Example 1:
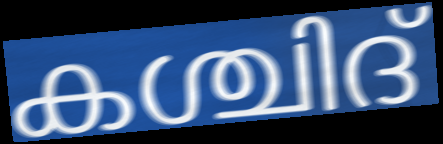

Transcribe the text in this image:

കശ്ചിദ്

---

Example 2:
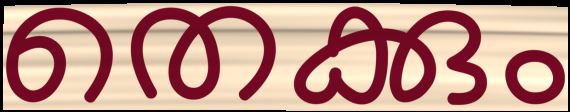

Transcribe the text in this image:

തെക്കും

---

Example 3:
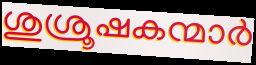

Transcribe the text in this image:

ശുശ്രൂഷകന്മാർ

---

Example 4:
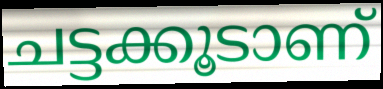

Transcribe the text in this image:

ചട്ടക്കൂടാണ്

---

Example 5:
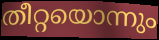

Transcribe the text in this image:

തീറ്റയൊന്നും